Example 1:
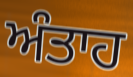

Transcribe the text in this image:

ਅੰਤਾਹ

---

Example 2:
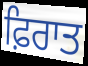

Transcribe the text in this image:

ਫ਼ਿਰਾਤ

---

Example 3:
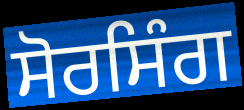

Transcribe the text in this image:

ਸੋਰਸਿੰਗ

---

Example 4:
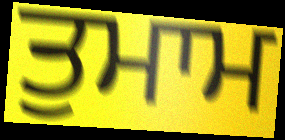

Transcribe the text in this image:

ਤੁਮਾਮ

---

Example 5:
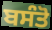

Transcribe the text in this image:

ਬਸੰਤੋ